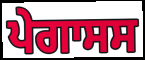
ਪੇਗਾਸਸ